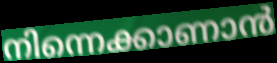
നിന്നെക്കാണാൻ